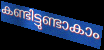
കണ്ടിട്ടുണ്ടാകാം